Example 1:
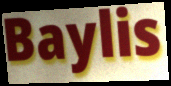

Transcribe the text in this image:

Baylis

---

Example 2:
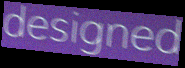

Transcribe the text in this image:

designed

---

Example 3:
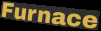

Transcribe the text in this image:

Furnace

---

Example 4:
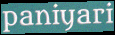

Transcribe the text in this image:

paniyari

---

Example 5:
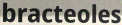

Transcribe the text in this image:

bracteoles